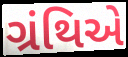
ગ્રંથિએ